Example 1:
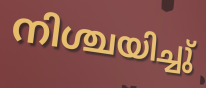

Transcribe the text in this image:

നിശ്ചയിച്ചു്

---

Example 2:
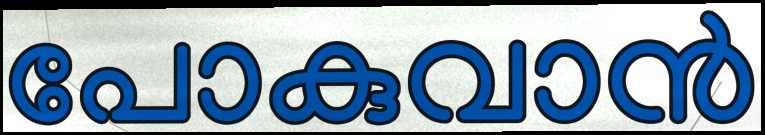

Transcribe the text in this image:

പോകുവാൻ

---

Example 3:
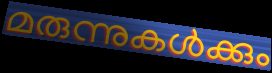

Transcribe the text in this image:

മരുന്നുകൾക്കും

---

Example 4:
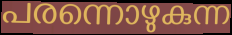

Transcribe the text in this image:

പരന്നൊഴുകുന്ന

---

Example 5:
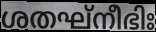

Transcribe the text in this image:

ശതഘ്നീഭിഃ